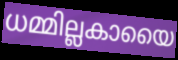
ധമ്മില്ലകായൈ